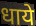
धाये